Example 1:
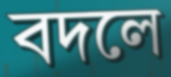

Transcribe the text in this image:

বদলে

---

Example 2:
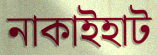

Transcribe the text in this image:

নাকাইহাট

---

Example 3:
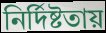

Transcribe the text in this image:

নির্দিষ্টতায়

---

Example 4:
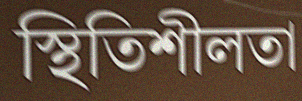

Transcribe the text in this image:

স্থিতিশীলতা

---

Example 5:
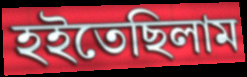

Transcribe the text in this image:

হইতেছিলাম